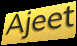
Ajeet